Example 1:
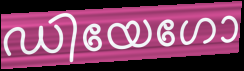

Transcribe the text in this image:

ഡിയേഗോ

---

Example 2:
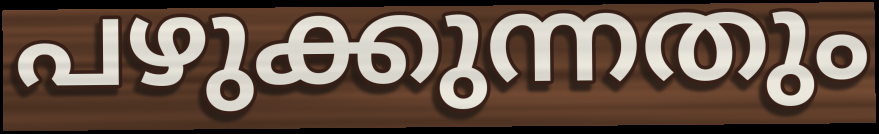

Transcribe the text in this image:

പഴുക്കുന്നതും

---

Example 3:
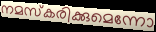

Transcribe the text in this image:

നമസ്കരിക്കുമെന്നോ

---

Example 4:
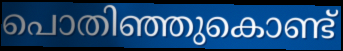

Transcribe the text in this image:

പൊതിഞ്ഞുകൊണ്ട്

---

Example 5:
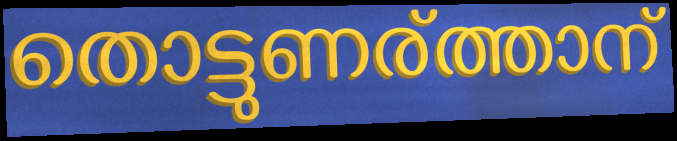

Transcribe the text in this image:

തൊട്ടുണര്ത്താന്